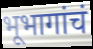
भूभागांचं